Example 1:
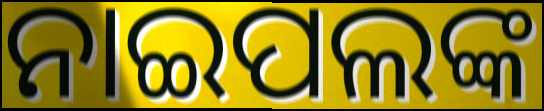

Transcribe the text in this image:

ନାଇପଲଙ୍କ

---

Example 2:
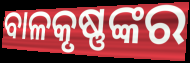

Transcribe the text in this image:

ବାଳକୃଷ୍ଣଙ୍କର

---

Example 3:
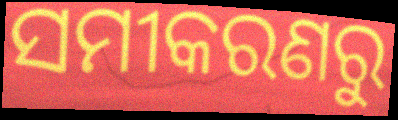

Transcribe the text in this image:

ସମୀକରଣରୁ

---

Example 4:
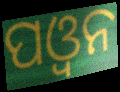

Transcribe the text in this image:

ପଓ୍ବନ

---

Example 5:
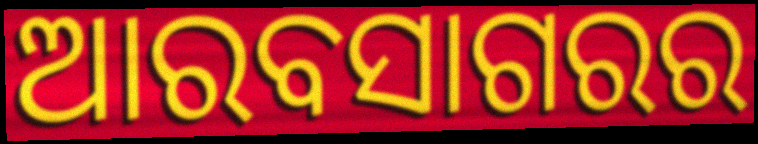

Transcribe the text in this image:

ଆରବସାଗରର